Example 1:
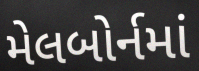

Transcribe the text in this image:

મેલબોર્નમાં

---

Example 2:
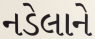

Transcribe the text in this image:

નડેલાને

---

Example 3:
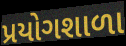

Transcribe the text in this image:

પ્રયોગશાળા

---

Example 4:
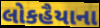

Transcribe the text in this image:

લોકહૈયાના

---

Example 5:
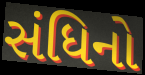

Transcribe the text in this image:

સંધિનો